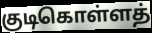
குடிகொள்ளத்